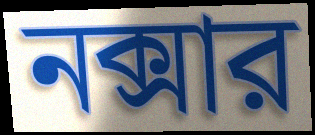
নক্সার